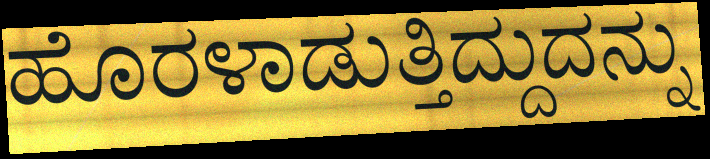
ಹೊರಳಾಡುತ್ತಿದ್ದುದನ್ನು